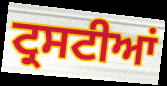
ਟ੍ਰਸਟੀਆਂ